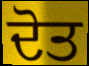
ਦੋਤ